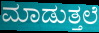
ಮಾಡುತ್ತಲೆ